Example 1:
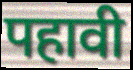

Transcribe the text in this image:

पहावी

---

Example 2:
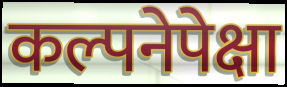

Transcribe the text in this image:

कल्पनेपेक्षा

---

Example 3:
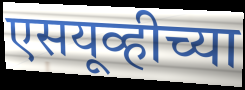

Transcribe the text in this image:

एसयूव्हीच्या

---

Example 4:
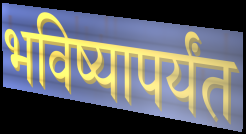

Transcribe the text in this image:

भविष्यापर्यंत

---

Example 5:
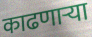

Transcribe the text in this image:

काढणार्‍या